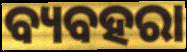
ବ୍ୟବହରା